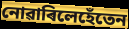
নোৱাৰিলেহেঁতেন